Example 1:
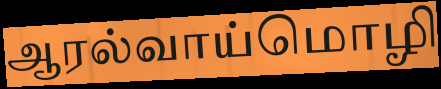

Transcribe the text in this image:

ஆரல்வாய்மொழி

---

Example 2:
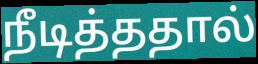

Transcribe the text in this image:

நீடித்ததால்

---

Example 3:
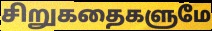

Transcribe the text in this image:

சிறுகதைகளுமே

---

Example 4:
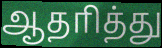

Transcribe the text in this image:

ஆதரித்து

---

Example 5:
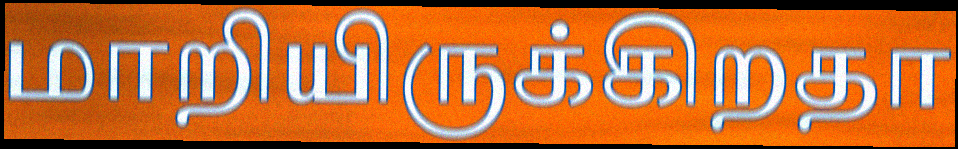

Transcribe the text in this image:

மாறியிருக்கிறதா